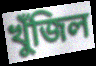
খুঁজিল